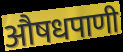
औषधपाणी